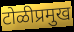
टोळीप्रमुख